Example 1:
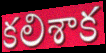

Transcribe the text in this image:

కలిశాక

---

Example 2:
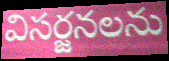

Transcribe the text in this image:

విసర్జనలను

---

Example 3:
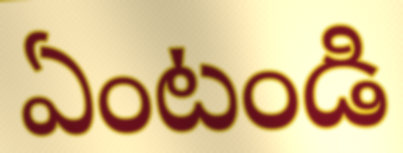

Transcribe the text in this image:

ఏంటండి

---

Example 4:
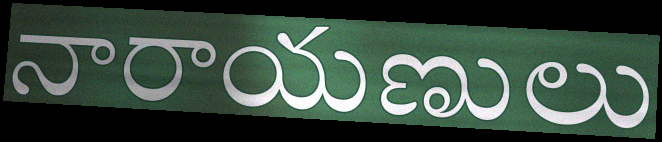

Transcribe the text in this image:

నారాయణులు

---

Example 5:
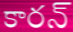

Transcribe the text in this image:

కారన్